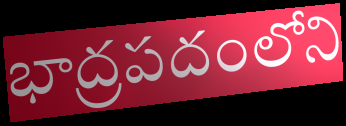
భాద్రపదంలోని